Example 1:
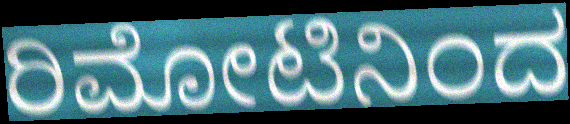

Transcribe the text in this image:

ರಿಮೋಟಿನಿಂದ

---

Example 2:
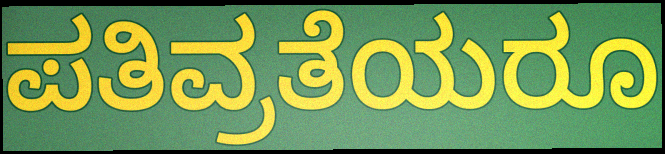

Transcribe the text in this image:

ಪತಿವ್ರತೆಯರೂ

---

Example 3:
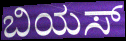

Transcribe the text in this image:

ಬಿಯಸ್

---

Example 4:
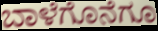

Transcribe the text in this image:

ಬಾಳೆಗೊನೆಗೂ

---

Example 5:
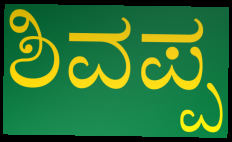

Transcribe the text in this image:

ಶಿವಪ್ಪ